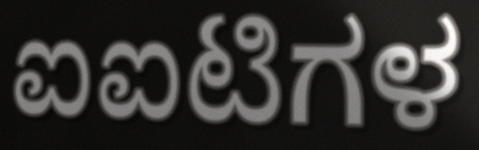
ಐಐಟಿಗಳ